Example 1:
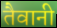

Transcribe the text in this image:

तैवानी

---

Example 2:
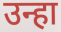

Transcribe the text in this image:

उन्हा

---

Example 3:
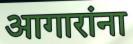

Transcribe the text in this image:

आगारांना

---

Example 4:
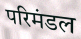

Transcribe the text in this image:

परिमंडल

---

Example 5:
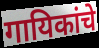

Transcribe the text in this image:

गायिकांचे